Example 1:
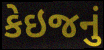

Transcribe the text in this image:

કેઇજનું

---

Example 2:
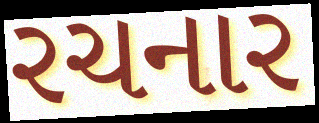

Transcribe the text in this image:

રચનાર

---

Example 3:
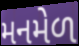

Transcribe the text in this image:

મનમેળ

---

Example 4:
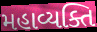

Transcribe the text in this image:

મહાવ્યક્તિ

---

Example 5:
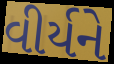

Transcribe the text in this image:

વીર્યને